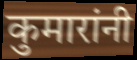
कुमारांनी